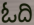
ಓದಿ